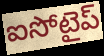
ఐసోటైప్